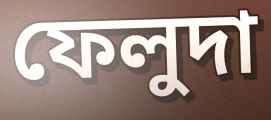
ফেলুদা